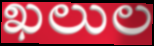
ఖలుల